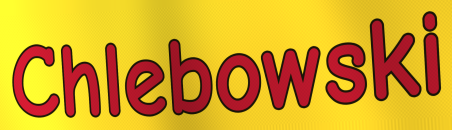
Chlebowski